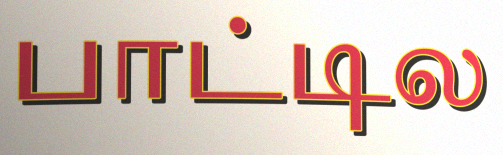
பாட்டில